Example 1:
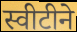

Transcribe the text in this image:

स्वीटीने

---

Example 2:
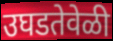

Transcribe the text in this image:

उघडतेवेळी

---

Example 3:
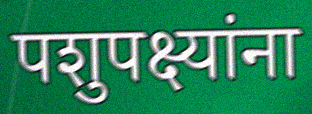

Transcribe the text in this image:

पशुपक्ष्यांना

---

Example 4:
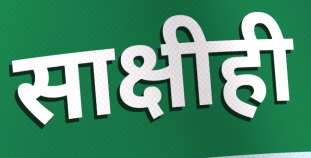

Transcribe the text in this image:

साक्षीही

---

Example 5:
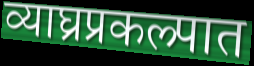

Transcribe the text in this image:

व्याघ्रप्रकल्पात